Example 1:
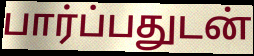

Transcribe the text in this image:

பார்ப்பதுடன்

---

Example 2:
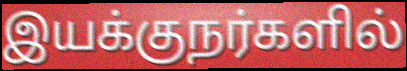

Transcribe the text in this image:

இயக்குநர்களில்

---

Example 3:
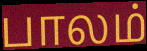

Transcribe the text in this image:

பாலம்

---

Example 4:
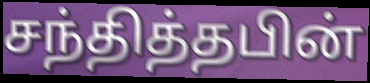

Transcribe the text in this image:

சந்தித்தபின்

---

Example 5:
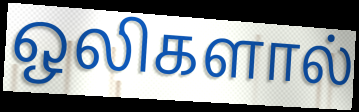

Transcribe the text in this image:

ஒலிகளால்